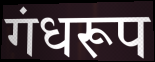
गंधरूप